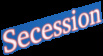
Secession